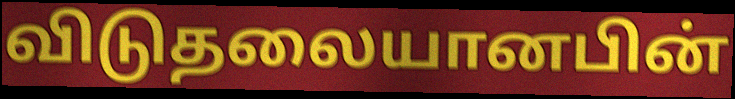
விடுதலையானபின்